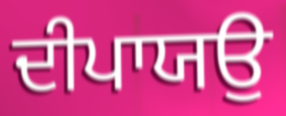
ਦੀਪਾਯਉ